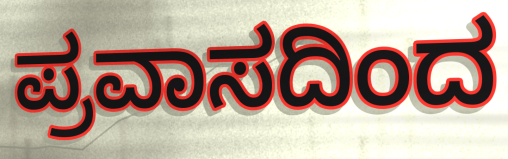
ಪ್ರವಾಸದಿಂದ